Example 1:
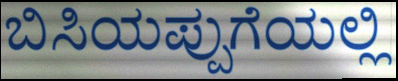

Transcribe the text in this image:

ಬಿಸಿಯಪ್ಪುಗೆಯಲ್ಲಿ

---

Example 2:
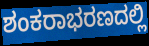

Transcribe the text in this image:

ಶಂಕರಾಭರಣದಲ್ಲಿ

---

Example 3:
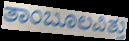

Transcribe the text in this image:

ತಾಂಬೂಲವಿತ್ತು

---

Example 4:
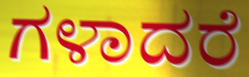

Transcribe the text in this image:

ಗಳಾದರೆ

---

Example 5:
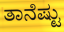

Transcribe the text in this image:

ತಾನೆಷ್ಟು